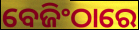
ବେଜିଂଠାରେ